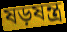
ষড়ষন্ত্র